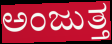
ಅಂಜುತ್ತ